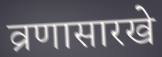
व्रणासारखे